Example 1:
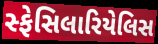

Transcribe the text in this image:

સ્ફેસિલારિયેલિસ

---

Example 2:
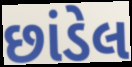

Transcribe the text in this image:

છાંડેલ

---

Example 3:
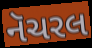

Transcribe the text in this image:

નૅચરલ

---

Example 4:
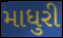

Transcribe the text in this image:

માધુરી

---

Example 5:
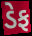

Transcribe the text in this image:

ડેફ